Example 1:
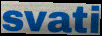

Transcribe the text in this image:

svati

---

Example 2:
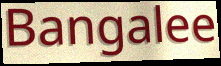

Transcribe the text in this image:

Bangalee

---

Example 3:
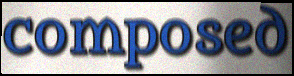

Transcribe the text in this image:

composed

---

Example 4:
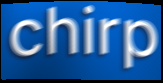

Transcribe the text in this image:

chirp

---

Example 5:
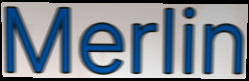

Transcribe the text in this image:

Merlin